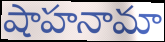
షాహనామా